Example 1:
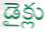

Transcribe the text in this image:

డైక్లు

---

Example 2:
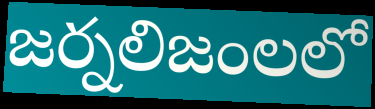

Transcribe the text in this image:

జర్నలిజంలలో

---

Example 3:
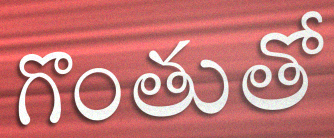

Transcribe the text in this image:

గొంతుతో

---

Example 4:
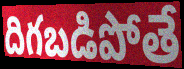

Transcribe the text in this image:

దిగబడిపోతే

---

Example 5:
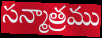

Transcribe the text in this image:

సన్మాత్రము